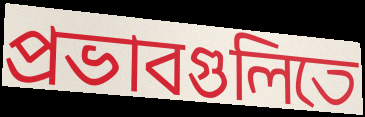
প্রভাবগুলিতে